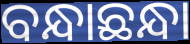
ବନ୍ଧାଛନ୍ଧା